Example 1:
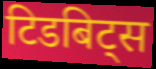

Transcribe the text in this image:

टिडबिट्स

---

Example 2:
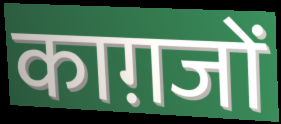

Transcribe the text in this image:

काग़जों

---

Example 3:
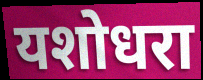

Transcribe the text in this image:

यशोधरा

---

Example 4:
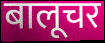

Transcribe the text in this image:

बालूचर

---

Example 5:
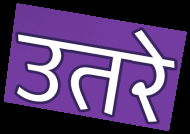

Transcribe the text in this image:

उतरे